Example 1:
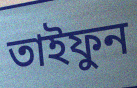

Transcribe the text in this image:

তাইফুন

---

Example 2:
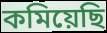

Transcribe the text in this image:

কমিয়েছি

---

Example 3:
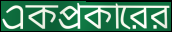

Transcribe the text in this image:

একপ্রকারের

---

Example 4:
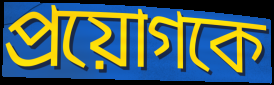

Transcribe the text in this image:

প্রয়োগকে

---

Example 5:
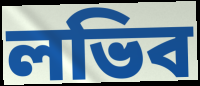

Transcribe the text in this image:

লভিব